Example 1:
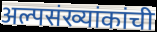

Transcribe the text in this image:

अल्पसंख्यांकांची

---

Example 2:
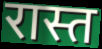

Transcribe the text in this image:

रास्त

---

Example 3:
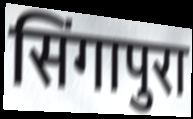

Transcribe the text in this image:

सिंगापुरा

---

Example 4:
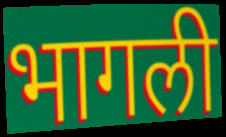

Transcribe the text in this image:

भागली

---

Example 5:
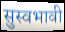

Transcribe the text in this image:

सुस्वभावी